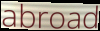
abroad